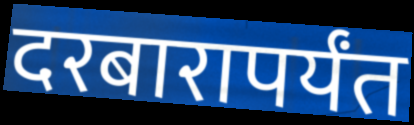
दरबारापर्यंत